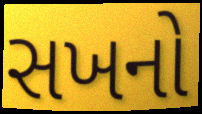
સખનો